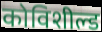
कोविशील्ड